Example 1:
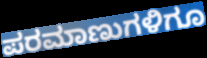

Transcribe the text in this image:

ಪರಮಾಣುಗಳಿಗೂ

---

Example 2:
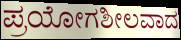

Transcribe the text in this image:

ಪ್ರಯೋಗಶೀಲವಾದ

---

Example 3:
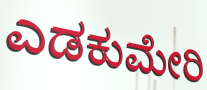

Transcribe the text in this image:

ಎಡಕುಮೇರಿ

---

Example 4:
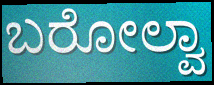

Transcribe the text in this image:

ಬರೋಲ್ವಾ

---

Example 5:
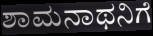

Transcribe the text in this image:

ಶಾಮನಾಥನಿಗೆ